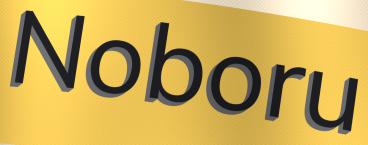
Noboru